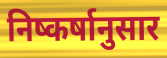
निष्कर्षानुसार